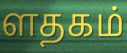
ளதகம்